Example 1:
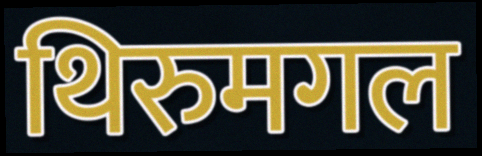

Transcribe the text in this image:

थिरुमगल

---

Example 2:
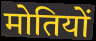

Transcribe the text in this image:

मोतियों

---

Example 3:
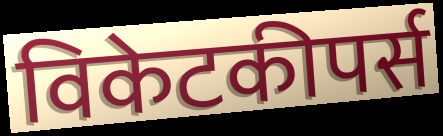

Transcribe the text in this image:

विकेटकीपर्स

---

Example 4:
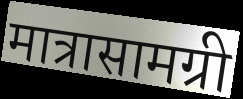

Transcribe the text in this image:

मात्रासामग्री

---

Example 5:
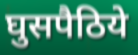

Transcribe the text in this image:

घुसपैठिये